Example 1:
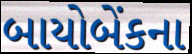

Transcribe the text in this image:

બાયોબેંકના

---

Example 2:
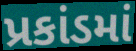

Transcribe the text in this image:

પ્રકાંડમાં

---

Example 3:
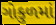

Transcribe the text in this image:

ગોકુળમાં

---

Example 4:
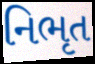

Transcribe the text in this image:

નિભૃત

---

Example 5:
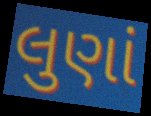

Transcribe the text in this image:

લુણાં